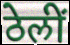
ठेलीं